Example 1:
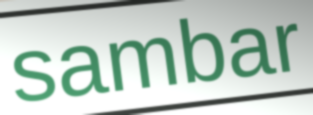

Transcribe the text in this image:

sambar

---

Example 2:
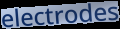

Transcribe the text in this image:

electrodes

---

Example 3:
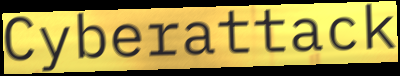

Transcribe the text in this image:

Cyberattack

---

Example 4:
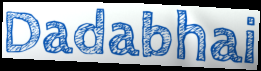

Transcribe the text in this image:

Dadabhai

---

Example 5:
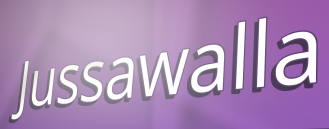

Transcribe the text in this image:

Jussawalla